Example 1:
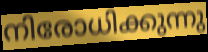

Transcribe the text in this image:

നിരോധിക്കുന്നു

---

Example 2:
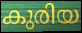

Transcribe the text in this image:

കുരിയ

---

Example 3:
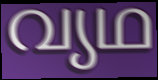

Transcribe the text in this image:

വ്യഥ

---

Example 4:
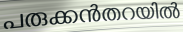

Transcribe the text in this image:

പരുക്കൻതറയിൽ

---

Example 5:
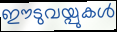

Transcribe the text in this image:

ഈടുവയ്പുകൾ